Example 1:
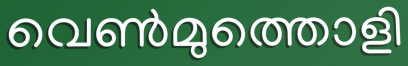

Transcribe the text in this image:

വെൺമുത്തൊളി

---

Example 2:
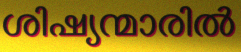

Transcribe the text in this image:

ശിഷ്യന്മാരിൽ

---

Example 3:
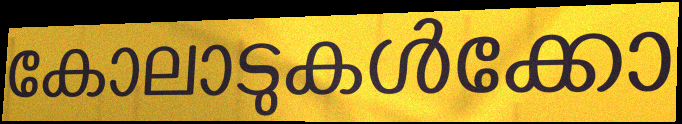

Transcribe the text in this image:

കോലാടുകൾക്കോ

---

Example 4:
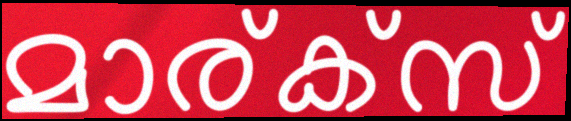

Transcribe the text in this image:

മാര്ക്സ്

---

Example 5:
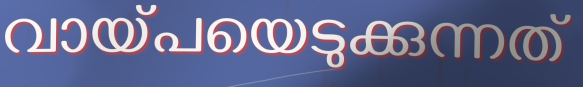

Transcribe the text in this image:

വായ്പയെടുക്കുന്നത്